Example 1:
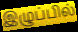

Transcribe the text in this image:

இழுப்பில்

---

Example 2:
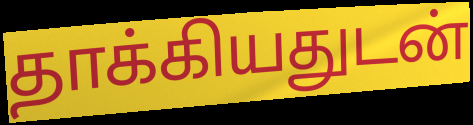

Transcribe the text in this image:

தாக்கியதுடன்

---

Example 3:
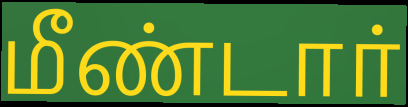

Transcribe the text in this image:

மீண்டார்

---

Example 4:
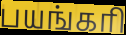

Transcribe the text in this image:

பயங்கரி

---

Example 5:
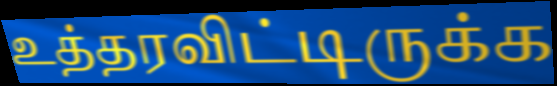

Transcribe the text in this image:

உத்தரவிட்டிருக்க